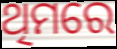
ଥିମରେ